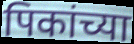
पिकांच्या